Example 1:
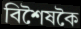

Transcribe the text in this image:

বিশৈষকৈ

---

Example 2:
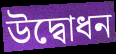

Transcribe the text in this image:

উদ্বোধন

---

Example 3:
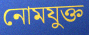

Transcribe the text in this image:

নোমযুক্ত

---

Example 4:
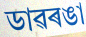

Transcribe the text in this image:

ডাৱৰঙা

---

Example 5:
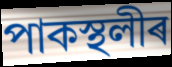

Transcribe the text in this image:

পাকস্থলীৰ